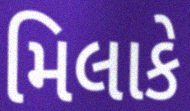
મિલાકે